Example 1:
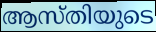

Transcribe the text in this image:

ആസ്തിയുടെ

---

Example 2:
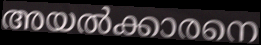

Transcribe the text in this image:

അയൽക്കാരനെ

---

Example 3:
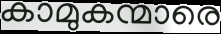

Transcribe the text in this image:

കാമുകന്മാരെ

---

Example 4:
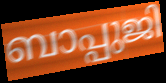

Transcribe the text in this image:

ബാപ്പുജി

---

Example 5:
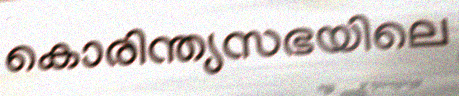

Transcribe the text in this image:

കൊരിന്ത്യസഭയിലെ